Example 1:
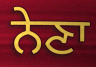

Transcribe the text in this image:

ਨੇਣਾ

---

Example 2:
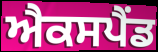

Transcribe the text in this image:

ਐਕਸਪੈਂਡ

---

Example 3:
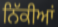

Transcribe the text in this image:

ਨਿੱਕੀਆਂ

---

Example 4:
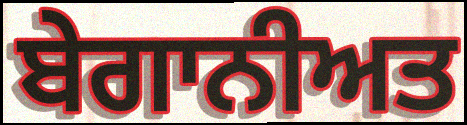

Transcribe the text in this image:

ਬੇਗਾਨੀਅਤ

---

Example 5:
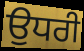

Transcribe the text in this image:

ਉਧਰੀ